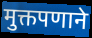
मुक्तपणाने